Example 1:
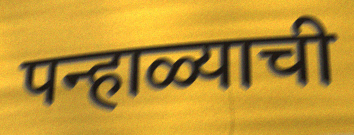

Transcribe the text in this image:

पन्हाळ्याची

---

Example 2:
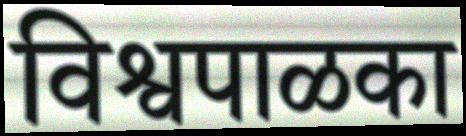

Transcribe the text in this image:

विश्वपाळका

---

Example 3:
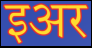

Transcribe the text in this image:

इअर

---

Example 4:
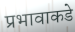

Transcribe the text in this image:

प्रभावाकडे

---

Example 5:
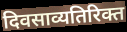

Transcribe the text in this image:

दिवसाव्यतिरिक्त